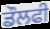
ਡੌਲਫੀ